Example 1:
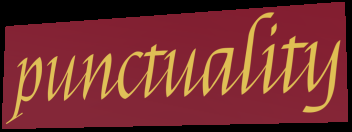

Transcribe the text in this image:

punctuality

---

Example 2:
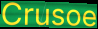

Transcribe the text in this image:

Crusoe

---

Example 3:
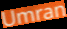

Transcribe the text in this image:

Umran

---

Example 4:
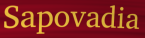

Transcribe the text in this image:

Sapovadia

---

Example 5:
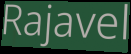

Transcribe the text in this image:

Rajavel